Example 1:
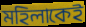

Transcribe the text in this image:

মহিলাকেই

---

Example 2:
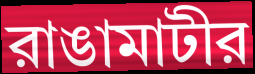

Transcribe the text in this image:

রাঙামাটীর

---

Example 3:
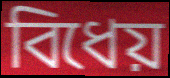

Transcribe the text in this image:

বিধেয়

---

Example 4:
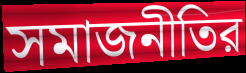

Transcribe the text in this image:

সমাজনীতির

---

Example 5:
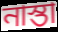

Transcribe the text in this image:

নাস্তা